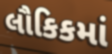
લૌકિકમાં